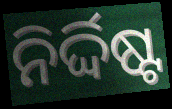
ନିର୍ଦ୍ଦିଷ୍ଟ